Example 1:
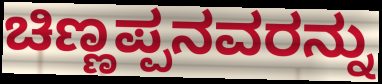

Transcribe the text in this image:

ಚಿಣ್ಣಪ್ಪನವರನ್ನು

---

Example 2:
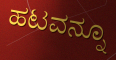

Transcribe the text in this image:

ಹಟವನ್ನೂ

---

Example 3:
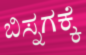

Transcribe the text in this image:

ಬಿಸ್ನಗಕ್ಕೆ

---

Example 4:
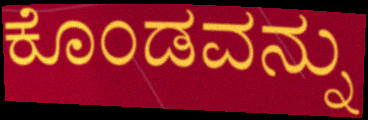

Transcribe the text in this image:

ಕೊಂಡವನ್ನು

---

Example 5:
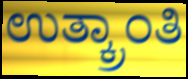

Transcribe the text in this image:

ಉತ್ಕ್ರಾಂತಿ